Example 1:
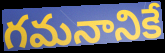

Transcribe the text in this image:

గమనానికే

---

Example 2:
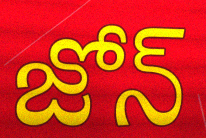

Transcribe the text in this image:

జోన్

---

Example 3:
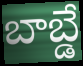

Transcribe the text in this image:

బాబ్డే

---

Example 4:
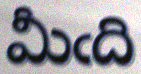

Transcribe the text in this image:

మీఁది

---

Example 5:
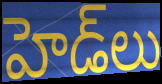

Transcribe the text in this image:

హెడ్‌లు